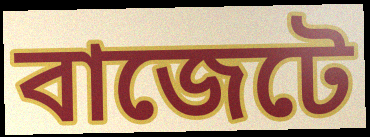
বাজেটে